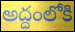
అద్దంలోకి